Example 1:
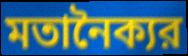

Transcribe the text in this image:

মতানৈক্যর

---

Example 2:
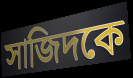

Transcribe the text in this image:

সাজিদকে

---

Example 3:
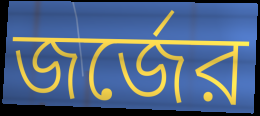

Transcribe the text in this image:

জর্জের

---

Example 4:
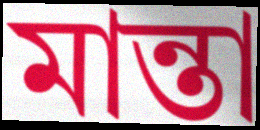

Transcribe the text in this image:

মান্তা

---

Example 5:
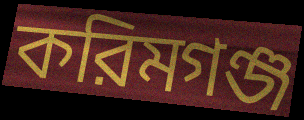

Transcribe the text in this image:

করিমগঞ্জ